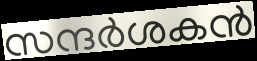
സന്ദർശകൻ